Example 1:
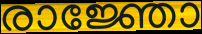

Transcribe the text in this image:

രാജ്ഞോ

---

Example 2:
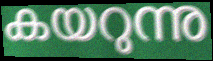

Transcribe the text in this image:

കയറുന്നു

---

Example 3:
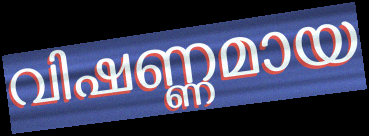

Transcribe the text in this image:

വിഷണ്ണമായ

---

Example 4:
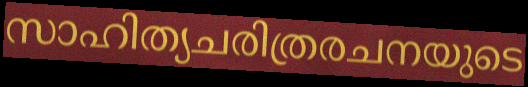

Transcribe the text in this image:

സാഹിത്യചരിത്രരചനയുടെ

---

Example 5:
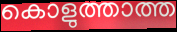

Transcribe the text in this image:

കൊളുത്താത്ത